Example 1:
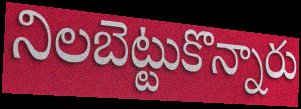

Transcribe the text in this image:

నిలబెట్టుకొన్నారు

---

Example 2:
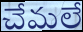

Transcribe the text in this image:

చేమలే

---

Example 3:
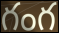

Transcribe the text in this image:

గంగ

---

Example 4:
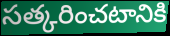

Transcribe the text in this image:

సత్కరించటానికి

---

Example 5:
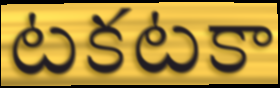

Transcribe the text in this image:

టకటకా